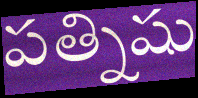
పత్నిషు